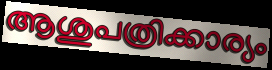
ആശുപത്രിക്കാര്യം